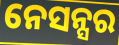
ନେସନ୍ସର